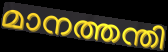
മാനത്തന്തി